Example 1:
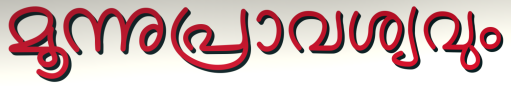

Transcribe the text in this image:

മൂന്നുപ്രാവശ്യവും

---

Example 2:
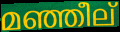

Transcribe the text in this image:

മഞ്ഞീല്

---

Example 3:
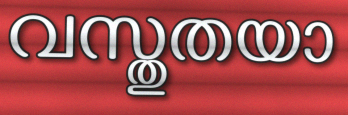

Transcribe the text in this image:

വസ്തുതയാ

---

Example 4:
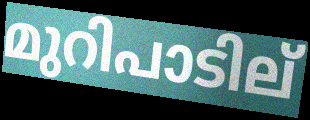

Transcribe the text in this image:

മുറിപാടില്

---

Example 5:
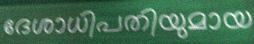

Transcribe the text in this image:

ദേശാധിപതിയുമായ